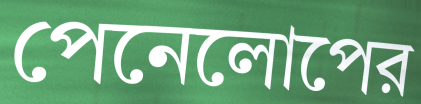
পেনেলোপের